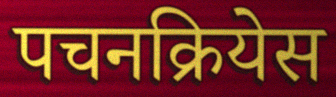
पचनक्रियेस